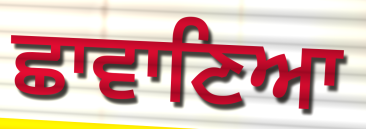
ਛਾਵਾਣਿਆ